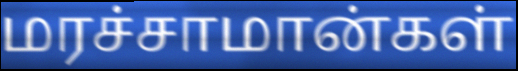
மரச்சாமான்கள்